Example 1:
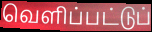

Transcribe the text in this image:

வெளிப்பட்டுப்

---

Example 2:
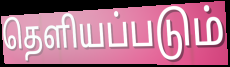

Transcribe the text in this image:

தெளியப்படும்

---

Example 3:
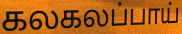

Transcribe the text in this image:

கலகலப்பாய்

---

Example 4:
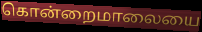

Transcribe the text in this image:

கொன்றைமாலையை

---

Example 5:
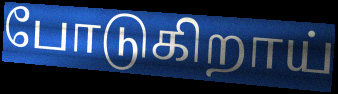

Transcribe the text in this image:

போடுகிறாய்